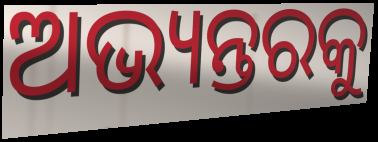
ଅଭ୍ୟନ୍ତରକୁ